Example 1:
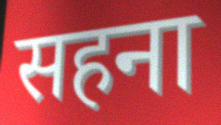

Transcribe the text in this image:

सहना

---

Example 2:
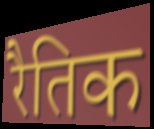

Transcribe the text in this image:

रैतिक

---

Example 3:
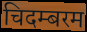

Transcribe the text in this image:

चिदम्बरम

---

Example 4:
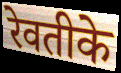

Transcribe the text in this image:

रेवतीके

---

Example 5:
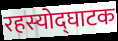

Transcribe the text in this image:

रहस्योद्घाटक